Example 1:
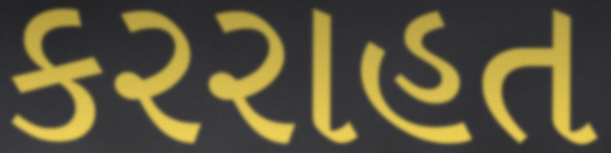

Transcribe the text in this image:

કરરાહત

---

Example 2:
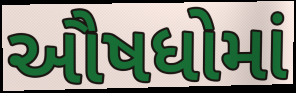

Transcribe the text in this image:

ઔષધોમાં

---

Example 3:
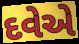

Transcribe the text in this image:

દવેએ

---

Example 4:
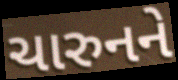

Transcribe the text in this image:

ચારુનને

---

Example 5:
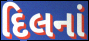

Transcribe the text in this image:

દિલનાં